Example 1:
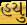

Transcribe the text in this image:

હયુ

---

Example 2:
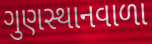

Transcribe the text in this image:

ગુણસ્થાનવાળા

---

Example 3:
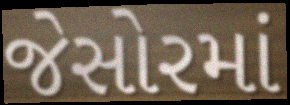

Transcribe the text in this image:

જેસોરમાં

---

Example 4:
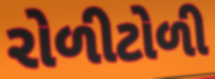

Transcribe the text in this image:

રોળીટોળી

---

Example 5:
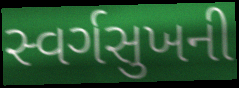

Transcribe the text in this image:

સ્વર્ગસુખની